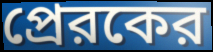
প্রেরকের